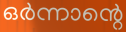
ഒർന്നാന്റെ